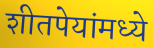
शीतपेयांमध्ये